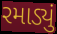
રમાડ્યું